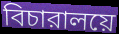
বিচারালয়ে